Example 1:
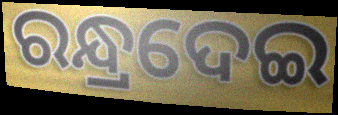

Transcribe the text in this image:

ରନ୍ଧ୍ରଦେଇ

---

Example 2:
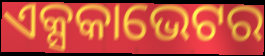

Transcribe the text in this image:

ଏକ୍ସକାଭେଟର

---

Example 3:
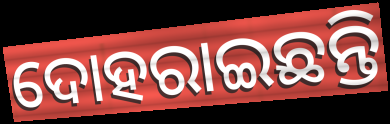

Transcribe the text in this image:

ଦୋହରାଇଛନ୍ତି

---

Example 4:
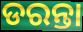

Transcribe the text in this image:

ଡରନ୍ତା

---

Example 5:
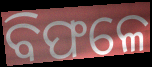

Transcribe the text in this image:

ବିଫଳେ